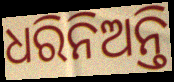
ଧରିନିଅନ୍ତି